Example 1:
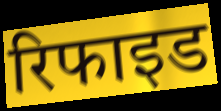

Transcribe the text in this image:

रिफाइड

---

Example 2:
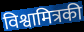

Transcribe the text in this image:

विश्वामित्रकी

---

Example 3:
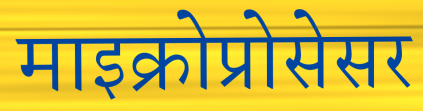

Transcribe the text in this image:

माइक्रोप्रोसेसर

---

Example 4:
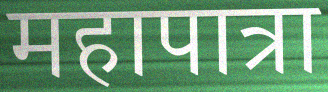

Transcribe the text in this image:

महापात्रा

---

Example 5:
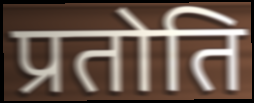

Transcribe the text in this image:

प्रतोति